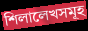
শিলালেখসমূহ